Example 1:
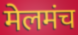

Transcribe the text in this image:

मेलमंच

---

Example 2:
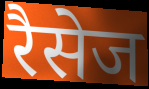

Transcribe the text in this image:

रैसेज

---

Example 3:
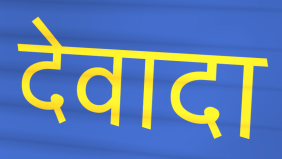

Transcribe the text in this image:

देवादा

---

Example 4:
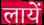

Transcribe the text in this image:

लायें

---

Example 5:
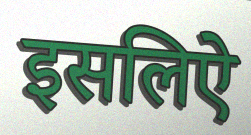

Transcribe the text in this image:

इसलिऐ